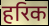
हरिक